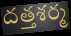
దత్తశర్మ